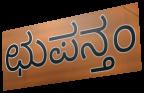
ಛುಪನ್ತಂ